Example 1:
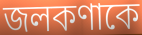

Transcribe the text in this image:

জলকণাকে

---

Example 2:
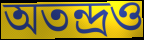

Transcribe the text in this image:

অতন্দ্রও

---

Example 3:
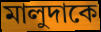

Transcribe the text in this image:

মালুদাকে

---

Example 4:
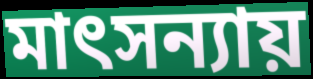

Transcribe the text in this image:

মাৎসন্যায়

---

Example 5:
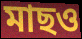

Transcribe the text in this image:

মাছও